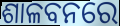
ଶାଳବନରେ